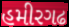
હમીરગઢ